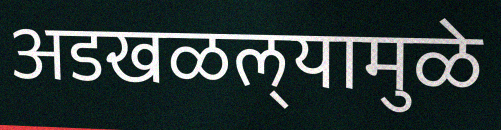
अडखळल्यामुळे